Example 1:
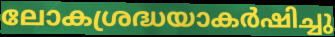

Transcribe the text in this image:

ലോകശ്രദ്ധയാകർഷിച്ചു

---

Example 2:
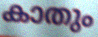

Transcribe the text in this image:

കാതും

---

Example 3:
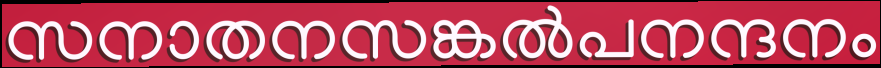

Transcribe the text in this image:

സനാതനസങ്കൽപനന്ദനം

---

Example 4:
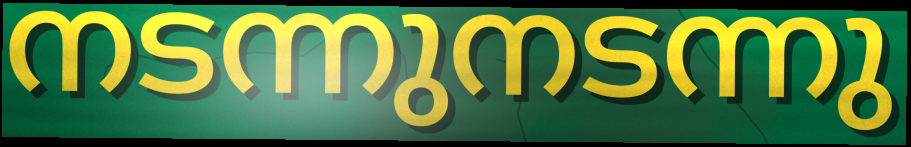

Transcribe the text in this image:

നടന്നുനടന്നു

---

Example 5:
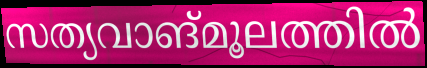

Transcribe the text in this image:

സത്യവാങ്മൂലത്തിൽ